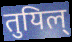
तुयिल्